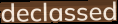
declassed